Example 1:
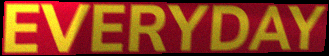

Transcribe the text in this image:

EVERYDAY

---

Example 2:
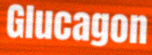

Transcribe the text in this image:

Glucagon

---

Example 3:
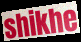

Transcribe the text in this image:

shikhe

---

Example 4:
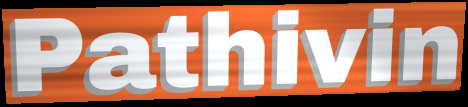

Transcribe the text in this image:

Pathivin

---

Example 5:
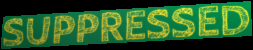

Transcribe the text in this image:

SUPPRESSED